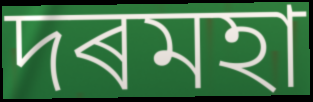
দৰমহা